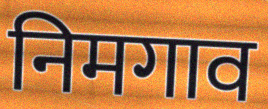
निमगाव